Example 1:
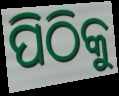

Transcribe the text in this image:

ପିଠିକୁ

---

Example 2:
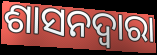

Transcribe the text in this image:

ଶାସନଦ୍ୱାରା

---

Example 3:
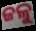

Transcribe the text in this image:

ଜଳୁ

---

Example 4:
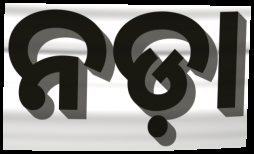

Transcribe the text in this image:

ନଡ଼ା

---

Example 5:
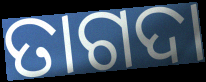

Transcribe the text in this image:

ତାଗଦା